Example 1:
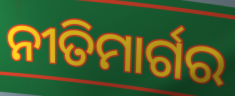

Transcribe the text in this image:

ନୀତିମାର୍ଗର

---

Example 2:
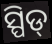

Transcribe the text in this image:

ସ୍ପିଡ୍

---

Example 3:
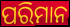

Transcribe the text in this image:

ପରିମାନ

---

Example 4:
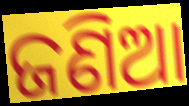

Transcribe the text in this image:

ଜଣିଆ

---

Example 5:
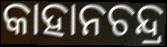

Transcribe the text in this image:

କାହାନଚନ୍ଦ୍ର